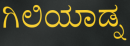
ಗಿಲಿಯಾಡ್ನ